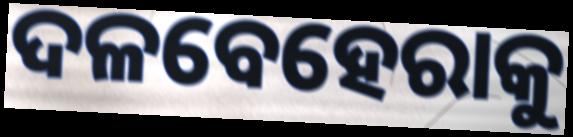
ଦଳବେହେରାକୁ